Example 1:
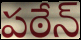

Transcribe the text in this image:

పఠేన్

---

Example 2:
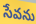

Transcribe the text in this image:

సేవను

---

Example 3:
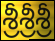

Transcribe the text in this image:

శ్రీశ్రీశ్రీ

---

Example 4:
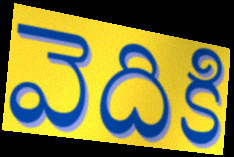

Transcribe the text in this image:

వెదికి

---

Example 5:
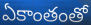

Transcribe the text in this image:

ఏకాంతంతో